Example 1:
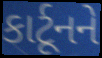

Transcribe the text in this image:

કાર્ટૂનને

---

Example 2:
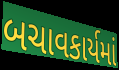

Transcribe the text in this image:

બચાવકાર્યમાં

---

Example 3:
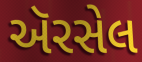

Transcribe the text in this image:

ઍરસેલ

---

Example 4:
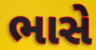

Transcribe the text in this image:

ભાસે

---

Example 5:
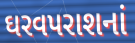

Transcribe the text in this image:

ઘરવપરાશનાં